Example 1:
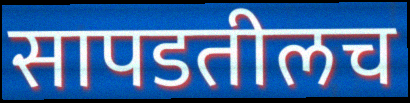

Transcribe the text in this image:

सापडतीलच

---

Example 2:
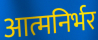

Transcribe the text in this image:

आत्मनिर्भर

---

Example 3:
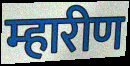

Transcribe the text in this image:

म्हारीण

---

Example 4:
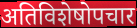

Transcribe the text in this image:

अतिविशेषोपचार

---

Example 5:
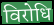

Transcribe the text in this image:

विरोधि